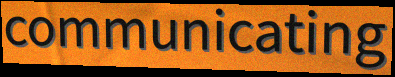
communicating